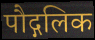
पौद्गलिक